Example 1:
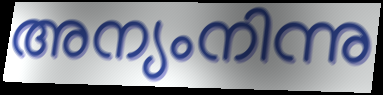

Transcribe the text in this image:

അന്യംനിന്നു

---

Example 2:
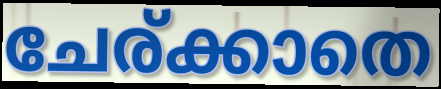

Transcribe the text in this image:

ചേര്ക്കാതെ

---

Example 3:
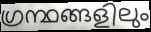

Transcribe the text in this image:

ഗ്രന്ഥങ്ങളിലും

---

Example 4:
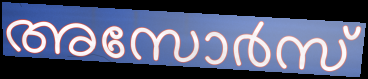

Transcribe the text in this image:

അസോർസ്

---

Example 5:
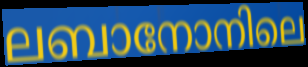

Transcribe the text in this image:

ലബാനോനിലെ